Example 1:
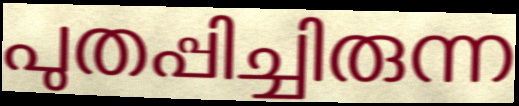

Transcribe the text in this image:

പുതപ്പിച്ചിരുന്ന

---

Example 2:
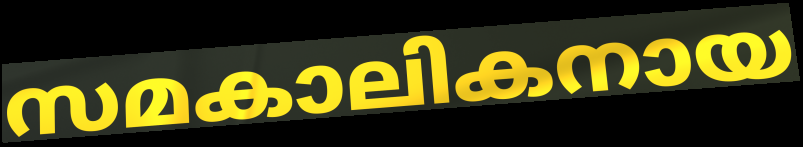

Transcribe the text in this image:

സമകാലികനായ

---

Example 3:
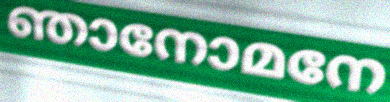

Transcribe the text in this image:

ഞാനോമനേ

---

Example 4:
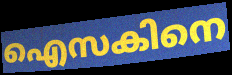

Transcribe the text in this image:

ഐസകിനെ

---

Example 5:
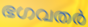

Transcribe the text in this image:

ഭഗവതർ